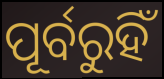
ପୂର୍ବରୁହିଁ